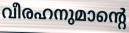
വീരഹനുമാന്റെ